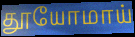
தூயோமாய்